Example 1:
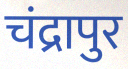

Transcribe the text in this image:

चंद्रापुर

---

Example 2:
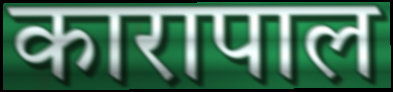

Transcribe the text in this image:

कारापाल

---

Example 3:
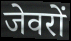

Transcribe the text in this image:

जेवरों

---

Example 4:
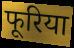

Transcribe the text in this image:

फूरिया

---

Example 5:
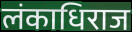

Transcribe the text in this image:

लंकाधिराज